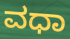
ವಧಾ